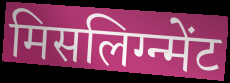
मिसलिग्न्मेंट